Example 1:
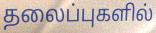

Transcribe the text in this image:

தலைப்புகளில்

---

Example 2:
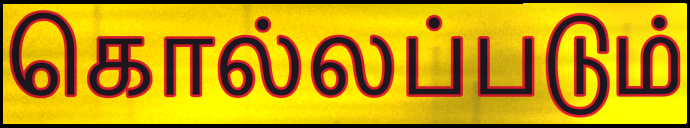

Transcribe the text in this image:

கொல்லப்படும்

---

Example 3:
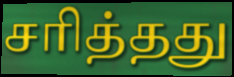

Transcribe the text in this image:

சரித்தது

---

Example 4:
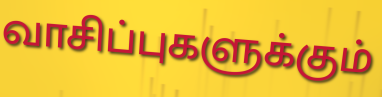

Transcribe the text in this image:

வாசிப்புகளுக்கும்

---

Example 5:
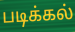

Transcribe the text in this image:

படிக்கல்